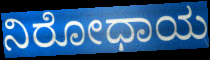
ನಿರೋಧಾಯ